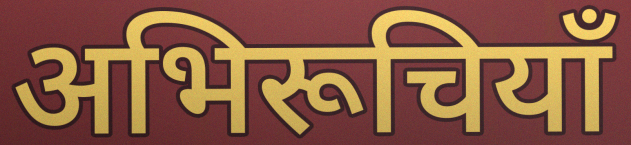
अभिरूचियाँ